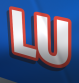
LU